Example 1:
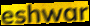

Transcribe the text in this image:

eshwar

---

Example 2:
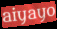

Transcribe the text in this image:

aiyayo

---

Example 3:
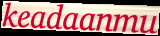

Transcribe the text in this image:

keadaanmu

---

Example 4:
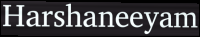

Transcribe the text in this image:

Harshaneeyam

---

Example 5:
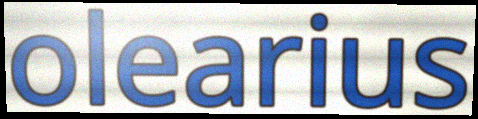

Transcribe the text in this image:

olearius